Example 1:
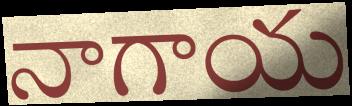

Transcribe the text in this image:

నాగాయ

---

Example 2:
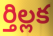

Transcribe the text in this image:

ర్తిల్లక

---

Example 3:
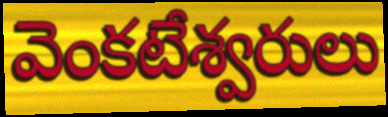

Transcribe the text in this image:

వెంకటేశ్వరులు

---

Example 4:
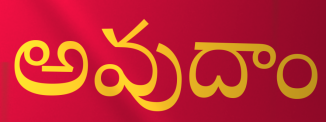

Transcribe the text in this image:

అవుదాం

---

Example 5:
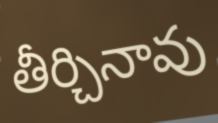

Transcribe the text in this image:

తీర్చినావు